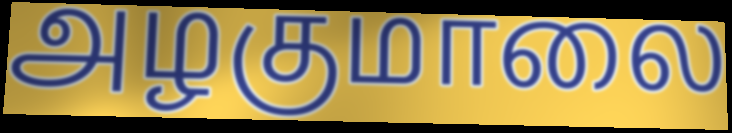
அழகுமாலை